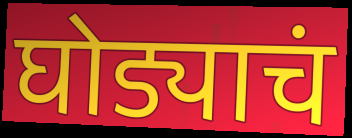
घोड्याचं